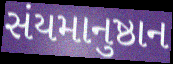
સંયમાનુષ્ઠાન